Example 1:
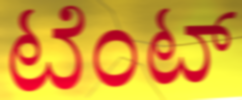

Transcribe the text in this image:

ಟೆಂಟ್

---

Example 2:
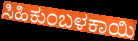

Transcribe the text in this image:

ಸಿಹಿಕುಂಬಳಕಾಯಿ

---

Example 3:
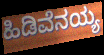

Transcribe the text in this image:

ಹಿಡಿವೆನಯ್ಯ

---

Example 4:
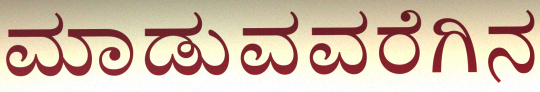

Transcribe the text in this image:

ಮಾಡುವವರೆಗಿನ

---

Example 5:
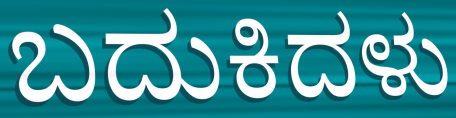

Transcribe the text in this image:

ಬದುಕಿದಳು